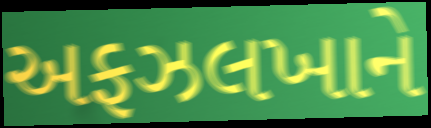
અફઝલખાને